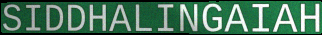
SIDDHALINGAIAH